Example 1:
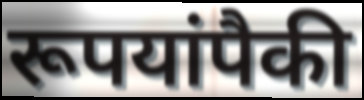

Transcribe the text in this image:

रूपयांपैकी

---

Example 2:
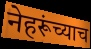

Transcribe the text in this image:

नेहरूंच्याच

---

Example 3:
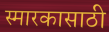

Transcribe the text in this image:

स्मारकासाठी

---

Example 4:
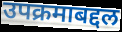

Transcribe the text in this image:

उपक्रमाबद्दल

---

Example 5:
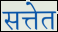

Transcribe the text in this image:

सत्तेत